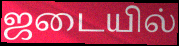
ஜடையில்